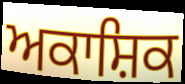
ਅਕਾਸ਼ਿਕ